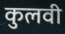
कुलवी